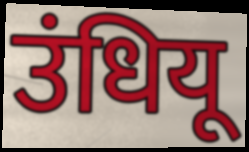
उंधियू